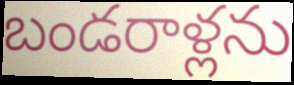
బండరాళ్లను